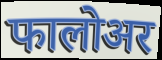
फालोअर